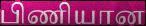
பிணியான